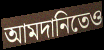
আমদানিতেও